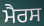
ਮੈਰਸ